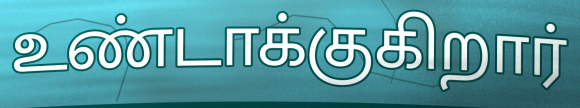
உண்டாக்குகிறார்